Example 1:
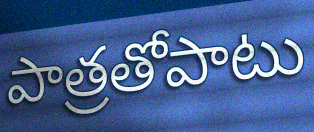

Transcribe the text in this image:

పాత్రతోపాటు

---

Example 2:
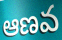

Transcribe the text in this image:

ఆణవ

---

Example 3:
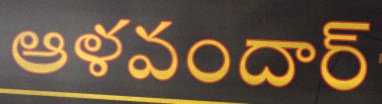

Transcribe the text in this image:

ఆళవందార్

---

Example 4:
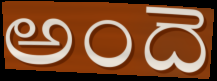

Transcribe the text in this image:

అందె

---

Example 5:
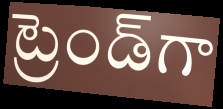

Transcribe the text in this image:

ట్రెండ్‌గా